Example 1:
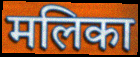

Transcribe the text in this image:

मलिका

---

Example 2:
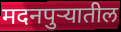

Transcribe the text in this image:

मदनपुऱ्यातील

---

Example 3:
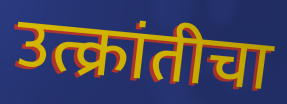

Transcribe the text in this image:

उत्क्रांतीचा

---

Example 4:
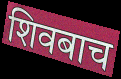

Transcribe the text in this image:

शिवबाच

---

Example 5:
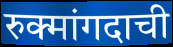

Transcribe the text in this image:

रुक्मांगदाची